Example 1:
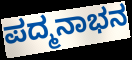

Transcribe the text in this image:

ಪದ್ಮನಾಭನ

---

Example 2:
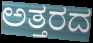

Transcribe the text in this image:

ಅತ್ತರದ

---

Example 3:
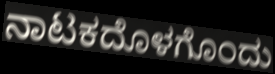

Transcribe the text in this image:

ನಾಟಕದೊಳಗೊಂದು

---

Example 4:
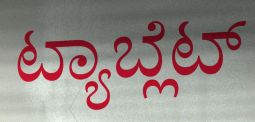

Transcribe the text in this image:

ಟ್ಯಾಬ್ಲೆಟ್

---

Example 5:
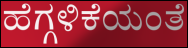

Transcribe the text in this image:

ಹೆಗ್ಗಳಿಕೆಯಂತೆ